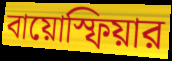
বায়োস্ফিয়ার